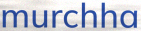
murchha